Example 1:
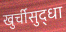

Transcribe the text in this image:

खुर्चीसुद्धा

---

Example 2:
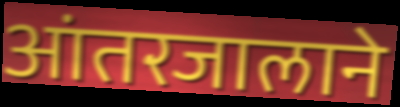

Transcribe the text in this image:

आंतरजालाने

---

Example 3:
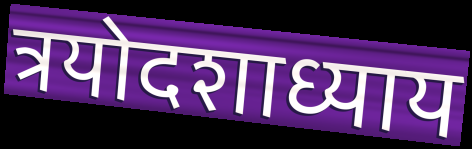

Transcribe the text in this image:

त्रयोदशाध्याय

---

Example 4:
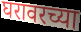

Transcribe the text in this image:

घरावरच्या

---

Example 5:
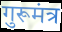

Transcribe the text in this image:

गुरूमंत्र